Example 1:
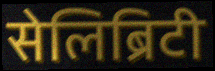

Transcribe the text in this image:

सेलिब्रिटी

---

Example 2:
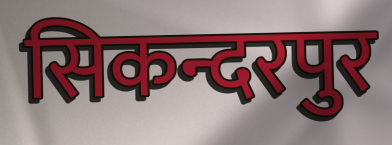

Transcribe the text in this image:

सिकन्दरपुर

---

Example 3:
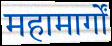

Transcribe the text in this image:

महामार्गों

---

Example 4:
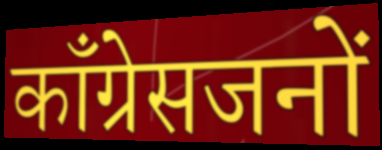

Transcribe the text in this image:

कॉंग्रेसजनों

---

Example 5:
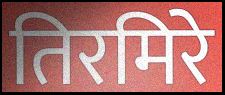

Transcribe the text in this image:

तिरमिरे